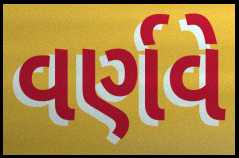
વર્ણવે